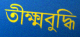
তীক্ষ্মবুদ্ধি